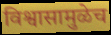
विश्वासामुळेच